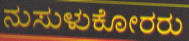
ನುಸುಳುಕೋರರು